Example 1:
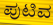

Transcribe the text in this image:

ಪುಟಿವ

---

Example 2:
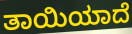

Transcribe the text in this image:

ತಾಯಿಯಾದೆ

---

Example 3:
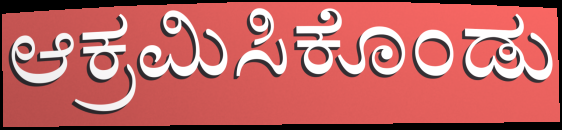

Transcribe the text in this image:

ಆಕ್ರಮಿಸಿಕೊಂಡು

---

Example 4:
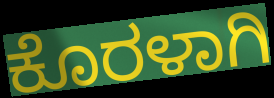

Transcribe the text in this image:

ಕೊರಳಾಗಿ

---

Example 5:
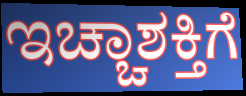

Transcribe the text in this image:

ಇಚ್ಚಾಶಕ್ತಿಗೆ